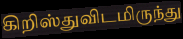
கிறிஸ்துவிடமிருந்து